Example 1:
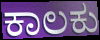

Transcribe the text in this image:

ಕಾಲಕು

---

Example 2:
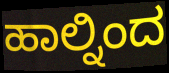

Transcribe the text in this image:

ಹಾಲ್ನಿಂದ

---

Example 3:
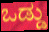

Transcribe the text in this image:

ಒಡ್ಡು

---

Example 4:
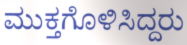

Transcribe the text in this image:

ಮುಕ್ತಗೊಳಿಸಿದ್ದರು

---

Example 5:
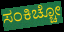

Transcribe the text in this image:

ಸಂಕಿಚ್ಚೋ